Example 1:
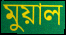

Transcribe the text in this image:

মুয়াল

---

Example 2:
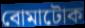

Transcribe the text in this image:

বোমাটোক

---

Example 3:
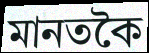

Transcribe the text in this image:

মানতকৈ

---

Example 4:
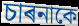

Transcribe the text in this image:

চাৰনাকে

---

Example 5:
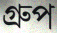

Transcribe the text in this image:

গ্ৰুপ